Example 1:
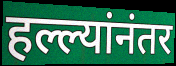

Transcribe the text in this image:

हल्ल्यांनंतर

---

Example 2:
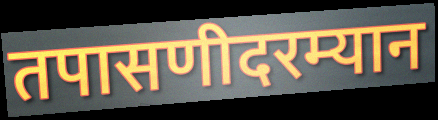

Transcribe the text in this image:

तपासणीदरम्यान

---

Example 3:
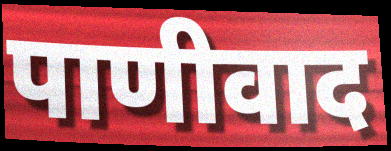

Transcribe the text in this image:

पाणीवाद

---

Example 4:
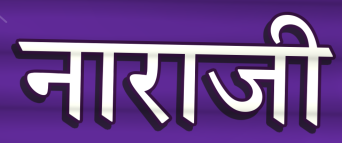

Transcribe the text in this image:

नाराजी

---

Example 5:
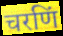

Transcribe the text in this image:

चरणिं